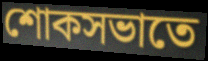
শোকসভাতে